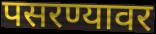
पसरण्यावर